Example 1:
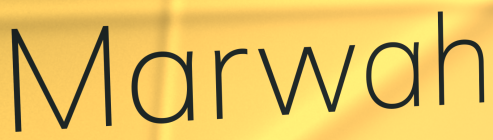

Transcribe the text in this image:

Marwah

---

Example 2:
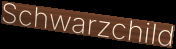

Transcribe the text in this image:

Schwarzchild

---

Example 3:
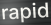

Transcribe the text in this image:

rapid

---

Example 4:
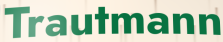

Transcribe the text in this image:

Trautmann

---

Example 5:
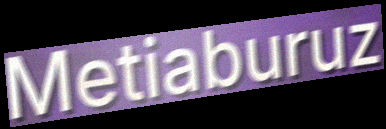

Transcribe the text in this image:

Metiaburuz